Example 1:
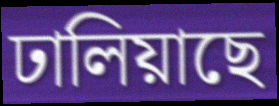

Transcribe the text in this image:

ঢালিয়াছে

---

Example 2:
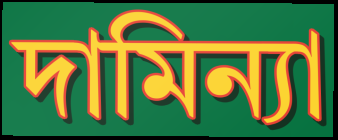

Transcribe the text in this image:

দামিন্যা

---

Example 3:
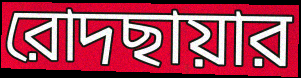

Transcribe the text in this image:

রোদছায়ার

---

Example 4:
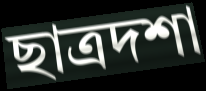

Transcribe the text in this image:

ছাত্রদশা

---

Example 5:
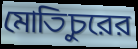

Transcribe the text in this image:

মোতিচুরের